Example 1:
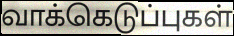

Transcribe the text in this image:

வாக்கெடுப்புகள்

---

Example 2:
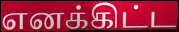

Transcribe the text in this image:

எனக்கிட்ட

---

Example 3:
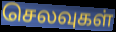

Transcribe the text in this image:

செலவுகள்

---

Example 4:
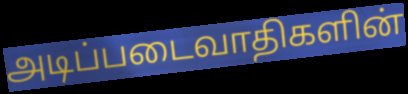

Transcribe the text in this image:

அடிப்படைவாதிகளின்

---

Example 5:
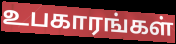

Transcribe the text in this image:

உபகாரங்கள்